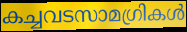
കച്ചവടസാമഗ്രികൾ